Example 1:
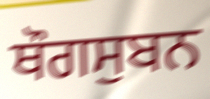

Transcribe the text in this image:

ਥੌਗਸੁਬਨ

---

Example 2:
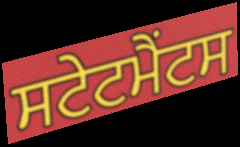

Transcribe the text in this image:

ਸਟੇਟਮੈਂਟਸ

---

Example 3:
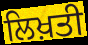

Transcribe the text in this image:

ਲਿਖ਼ਤੀ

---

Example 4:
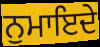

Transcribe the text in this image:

ਨੁਮਾਇਦੇ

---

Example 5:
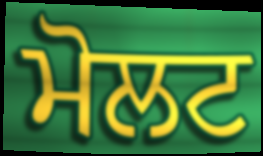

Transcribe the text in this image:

ਮੋਲਟ